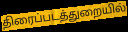
திரைப்படத்துறையில்